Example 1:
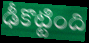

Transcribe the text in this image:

ఢీకొట్టింది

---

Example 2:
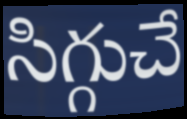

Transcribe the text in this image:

సిగ్గుచే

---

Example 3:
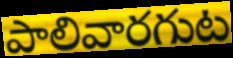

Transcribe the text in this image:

పాలివారగుట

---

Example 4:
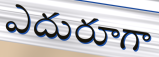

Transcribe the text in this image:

ఎదురూగా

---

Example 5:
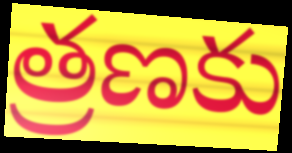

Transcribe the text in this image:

త్రణకు